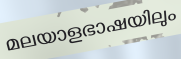
മലയാളഭാഷയിലും